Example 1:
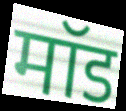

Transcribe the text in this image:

मॉड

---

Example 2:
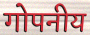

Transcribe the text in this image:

गोपनीय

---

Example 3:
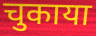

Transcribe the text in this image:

चुकाया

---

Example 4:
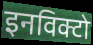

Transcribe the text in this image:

इनविक्टो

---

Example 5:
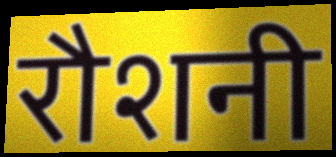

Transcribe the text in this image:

रौशनी